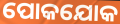
ପୋକଯୋକ